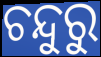
ଚନ୍ଦୁରୁ